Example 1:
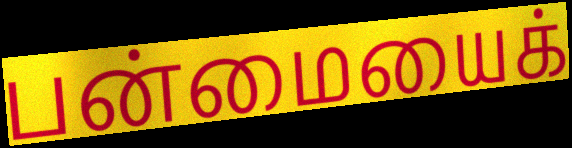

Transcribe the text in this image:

பன்மையைக்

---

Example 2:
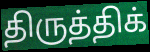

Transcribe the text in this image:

திருத்திக்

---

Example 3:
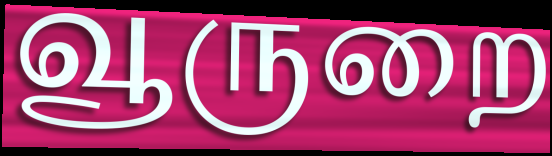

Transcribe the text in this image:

வூருறை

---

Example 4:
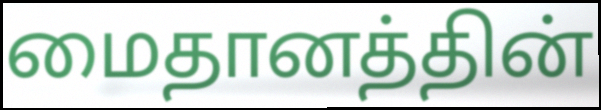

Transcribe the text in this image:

மைதானத்தின்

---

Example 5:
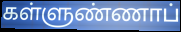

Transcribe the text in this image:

கள்ளுண்ணாப்